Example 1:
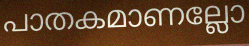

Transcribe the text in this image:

പാതകമാണല്ലോ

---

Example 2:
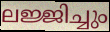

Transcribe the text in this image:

ലജ്ജിച്ചും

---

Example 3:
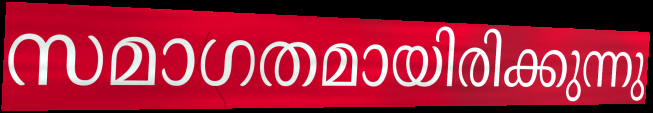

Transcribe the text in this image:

സമാഗതമായിരിക്കുന്നു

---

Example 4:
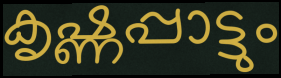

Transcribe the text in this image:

കൃഷ്ണപ്പാട്ടും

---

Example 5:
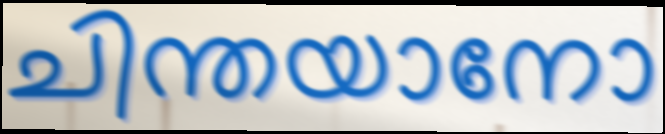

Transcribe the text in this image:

ചിന്തയാനോ